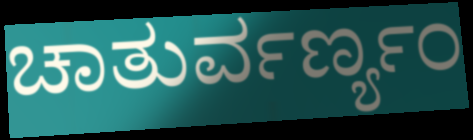
ಚಾತುರ್ವರ್ಣ್ಯಂ